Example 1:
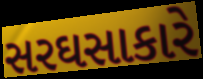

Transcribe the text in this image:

સરઘસાકારે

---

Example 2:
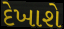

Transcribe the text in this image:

દેખાશે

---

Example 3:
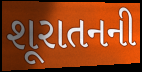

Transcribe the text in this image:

શૂરાતનની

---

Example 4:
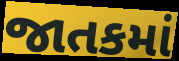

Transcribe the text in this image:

જાતકમાં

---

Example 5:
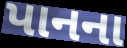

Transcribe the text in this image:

પાનના